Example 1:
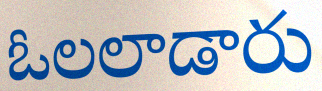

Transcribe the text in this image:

ఓలలాడారు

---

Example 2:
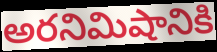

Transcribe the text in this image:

అరనిమిషానికి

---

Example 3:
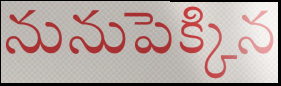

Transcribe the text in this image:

నునుపెక్కిన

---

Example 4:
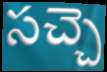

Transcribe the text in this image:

సచ్చె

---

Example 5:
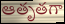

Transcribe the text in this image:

ఆతృతగా